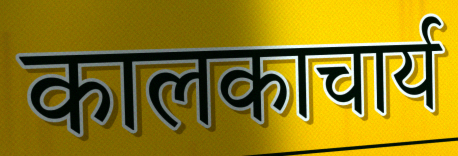
कालकाचार्य